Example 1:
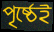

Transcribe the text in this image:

পৃষ্ঠেই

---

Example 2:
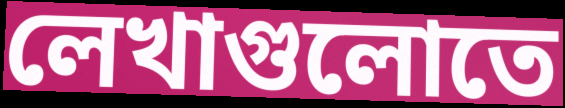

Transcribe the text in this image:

লেখাগুলোতে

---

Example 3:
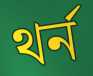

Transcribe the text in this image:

থর্ন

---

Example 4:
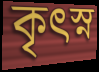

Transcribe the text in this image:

কৃৎস্ন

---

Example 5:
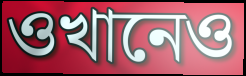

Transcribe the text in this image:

ওখানেও